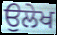
ਉਲੇਖ